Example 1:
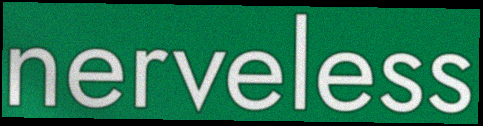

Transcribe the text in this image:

nerveless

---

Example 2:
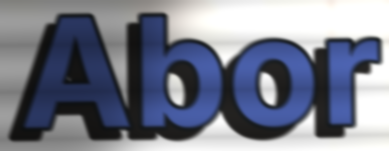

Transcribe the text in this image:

Abor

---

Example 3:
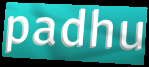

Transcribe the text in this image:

padhu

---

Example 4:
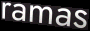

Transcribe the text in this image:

ramas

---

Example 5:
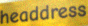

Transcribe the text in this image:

headdress